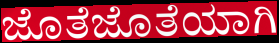
ಜೊತೆಜೊತೆಯಾಗಿ